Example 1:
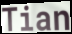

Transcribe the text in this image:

Tian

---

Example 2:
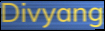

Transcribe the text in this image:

Divyang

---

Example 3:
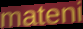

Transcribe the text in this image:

mateni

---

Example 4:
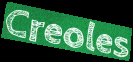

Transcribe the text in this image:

Creoles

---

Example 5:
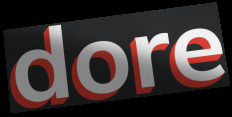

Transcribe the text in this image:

dore